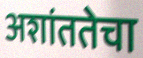
अशांततेचा